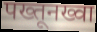
पख्तूनख्वा